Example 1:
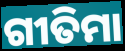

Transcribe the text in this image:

ଗୀତିମା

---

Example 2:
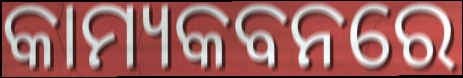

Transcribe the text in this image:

କାମ୍ୟକବନରେ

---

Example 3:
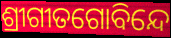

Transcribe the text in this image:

ଶ୍ରୀଗୀତଗୋବିନ୍ଦେ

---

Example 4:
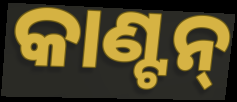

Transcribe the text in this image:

କାଣ୍ଟନ୍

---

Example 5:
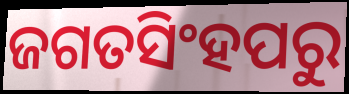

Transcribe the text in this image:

ଜଗତସିଂହପରୁ